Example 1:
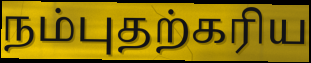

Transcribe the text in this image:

நம்புதற்கரிய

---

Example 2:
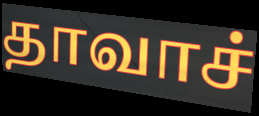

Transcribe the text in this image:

தாவாச்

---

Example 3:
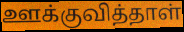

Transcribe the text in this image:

ஊக்குவித்தாள்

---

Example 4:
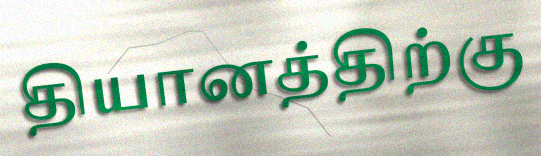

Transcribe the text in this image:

தியானத்திற்கு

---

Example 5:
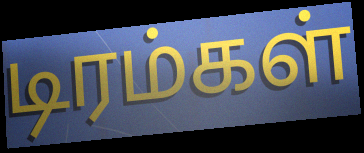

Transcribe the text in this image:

டிரம்கள்